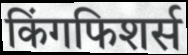
किंगफिशर्स